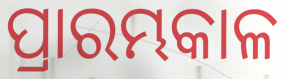
ପ୍ରାରମ୍ଭକାଳ